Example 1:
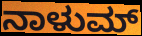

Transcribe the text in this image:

ನಾಳುಮ್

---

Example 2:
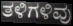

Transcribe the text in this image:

ತಳಿಗಳಿವು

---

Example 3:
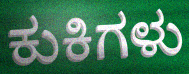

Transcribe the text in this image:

ಕುಕಿಗಳು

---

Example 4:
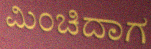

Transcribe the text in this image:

ಮಿಂಚಿದಾಗ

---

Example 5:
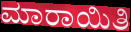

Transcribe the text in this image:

ಮಾರಾಯಿತಿ